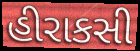
હીરાકસી